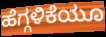
ಹೆಗ್ಗಳಿಕೆಯೂ